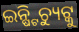
ଇନ୍ଷ୍ଟିଚ୍ୟୁଟ୍କୁ